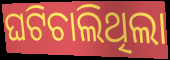
ଘଟିଚାଲିଥିଲା